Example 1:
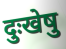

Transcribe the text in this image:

दुःखेषु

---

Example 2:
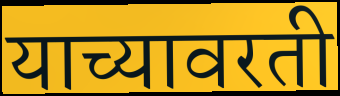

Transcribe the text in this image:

याच्यावरती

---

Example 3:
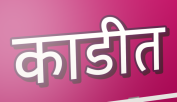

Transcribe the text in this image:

काडीत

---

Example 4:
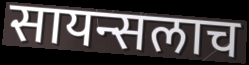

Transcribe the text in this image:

सायन्सलाच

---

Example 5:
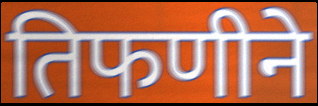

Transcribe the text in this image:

तिफणीने